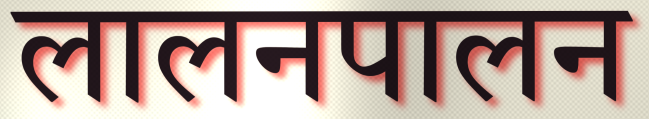
लालनपालन